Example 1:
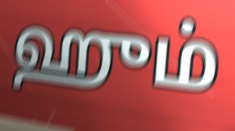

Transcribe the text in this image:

ஹும்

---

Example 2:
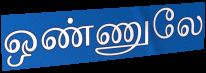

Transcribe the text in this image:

ஒண்ணுலே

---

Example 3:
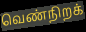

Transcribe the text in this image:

வெண்நிறக்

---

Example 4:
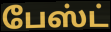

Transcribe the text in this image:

பேஸ்ட்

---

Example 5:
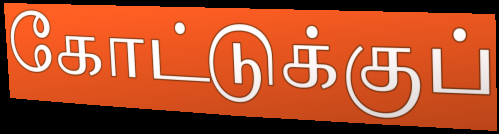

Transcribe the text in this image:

கோட்டுக்குப்